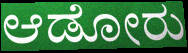
ಆಡೋರು